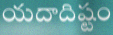
యదాదిష్టం